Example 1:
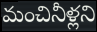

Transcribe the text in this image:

మంచినీళ్లని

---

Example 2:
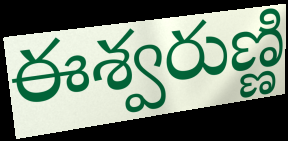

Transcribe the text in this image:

ఈశ్వరుణ్ణి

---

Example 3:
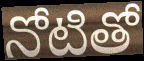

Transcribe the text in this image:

నోటితో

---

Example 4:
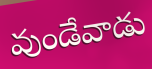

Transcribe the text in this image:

వుండేవాడు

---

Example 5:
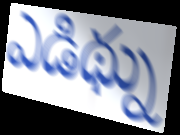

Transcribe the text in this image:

ఎడిథ్ను